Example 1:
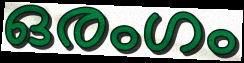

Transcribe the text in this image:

ഒരംഗം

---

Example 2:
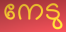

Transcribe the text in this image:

നേടു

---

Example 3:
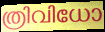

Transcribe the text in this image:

ത്രിവിധോ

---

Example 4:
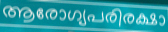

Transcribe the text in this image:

ആരോഗ്യപരിരക്ഷാ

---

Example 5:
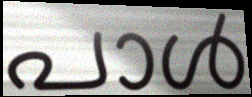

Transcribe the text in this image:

പാൾ